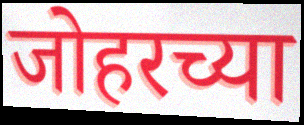
जोहरच्या